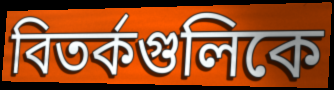
বিতর্কগুলিকে